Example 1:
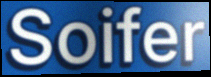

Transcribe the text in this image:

Soifer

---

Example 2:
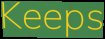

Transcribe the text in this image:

Keeps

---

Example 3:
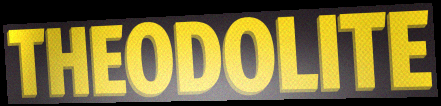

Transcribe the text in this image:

THEODOLITE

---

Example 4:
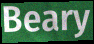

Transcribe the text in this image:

Beary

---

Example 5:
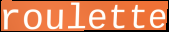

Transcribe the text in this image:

roulette